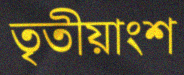
তৃতীয়াংশ